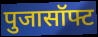
पुजासॉफ्ट